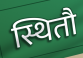
स्थितौ